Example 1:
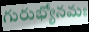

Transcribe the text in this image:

గురుభ్యోనమః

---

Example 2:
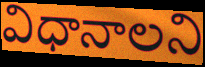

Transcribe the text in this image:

విధానాలని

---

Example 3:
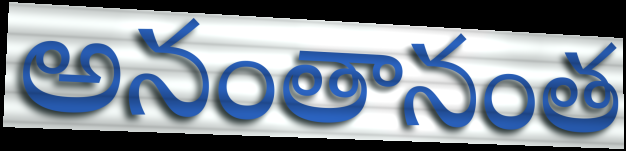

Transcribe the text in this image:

అనంతానంత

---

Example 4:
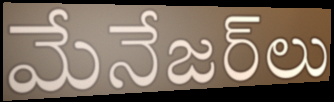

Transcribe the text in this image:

మేనేజర్‌లు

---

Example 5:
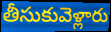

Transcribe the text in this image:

తీసుకువెళ్లారు